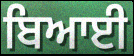
ਬਿਆਈ